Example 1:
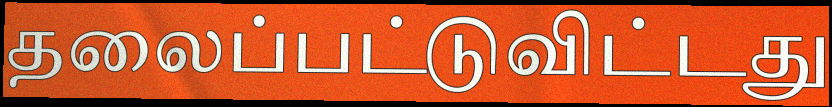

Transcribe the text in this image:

தலைப்பட்டுவிட்டது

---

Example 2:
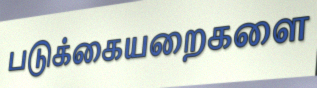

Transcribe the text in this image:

படுக்கையறைகளை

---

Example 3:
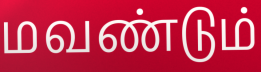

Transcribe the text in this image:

மவண்டும்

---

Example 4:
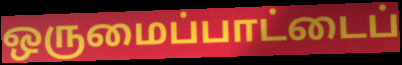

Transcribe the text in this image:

ஒருமைப்பாட்டைப்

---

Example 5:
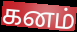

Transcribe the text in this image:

கனம்